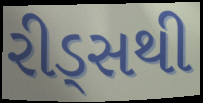
રીડ્સથી